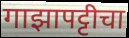
गाझापट्टीचा